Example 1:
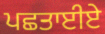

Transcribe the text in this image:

ਪਛਤਾਈਏ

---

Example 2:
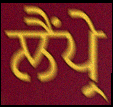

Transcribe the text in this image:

ਲੈਂਪ੍ਰੇ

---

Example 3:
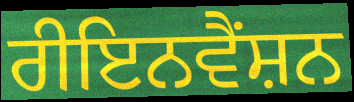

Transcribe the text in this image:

ਰੀਇਨਵੈਂਸ਼ਨ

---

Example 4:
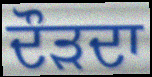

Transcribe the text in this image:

ਦੌੜਦਾ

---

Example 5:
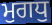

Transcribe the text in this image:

ਮੁਗਧੁ